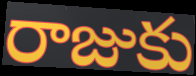
రాజుకు